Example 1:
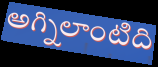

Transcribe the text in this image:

అగ్నిలాంటిది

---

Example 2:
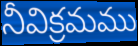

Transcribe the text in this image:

నీవిక్రమము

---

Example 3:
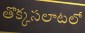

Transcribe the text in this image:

తొక్కసలాటలో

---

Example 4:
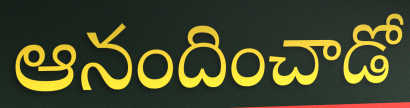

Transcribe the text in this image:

ఆనందించాడో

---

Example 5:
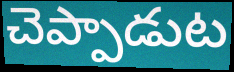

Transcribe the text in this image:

చెప్పాడుట